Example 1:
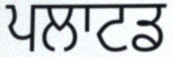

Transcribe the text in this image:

ਪਲਾਟਡ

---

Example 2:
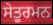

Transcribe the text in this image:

ਸੇਤੂਰਮਨ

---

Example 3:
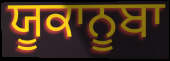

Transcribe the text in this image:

ਯੂਕਾਨੂਬਾ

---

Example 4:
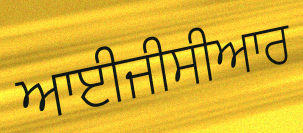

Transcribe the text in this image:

ਆਈਜੀਸੀਆਰ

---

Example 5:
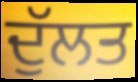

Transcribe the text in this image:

ਦੁੱਲਤ